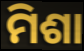
ମିଶା